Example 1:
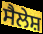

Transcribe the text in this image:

ਸੈਲੇਸ਼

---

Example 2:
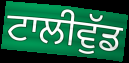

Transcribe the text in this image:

ਟਾਲੀਵੁੱਡ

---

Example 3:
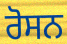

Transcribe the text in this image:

ਰੋਸਨ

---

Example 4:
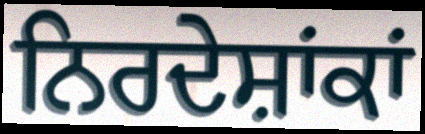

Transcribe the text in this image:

ਨਿਰਦੇਸ਼ਾਂਕਾਂ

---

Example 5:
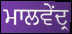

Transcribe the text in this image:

ਮਾਲਵੇਂਦ੍ਰ